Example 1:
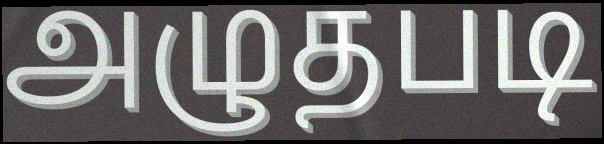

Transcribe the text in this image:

அழுதபடி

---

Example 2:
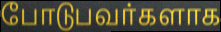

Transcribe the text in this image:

போடுபவர்களாக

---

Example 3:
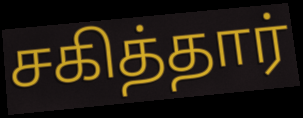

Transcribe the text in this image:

சகித்தார்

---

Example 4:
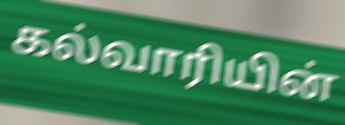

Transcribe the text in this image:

கல்வாரியின்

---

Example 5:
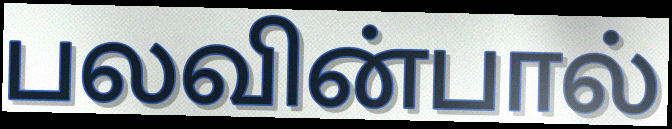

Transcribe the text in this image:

பலவின்பால்